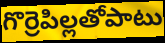
గొర్రెపిల్లతోపాటు